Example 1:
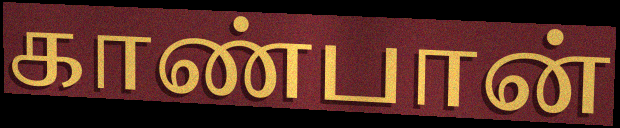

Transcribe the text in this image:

காண்பான்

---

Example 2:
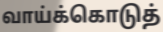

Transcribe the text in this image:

வாய்க்கொடுத்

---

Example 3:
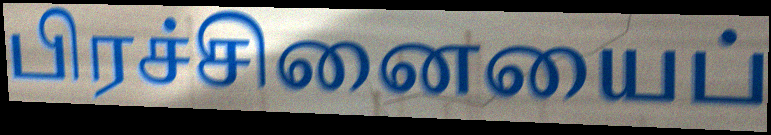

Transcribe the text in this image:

பிரச்சினையைப்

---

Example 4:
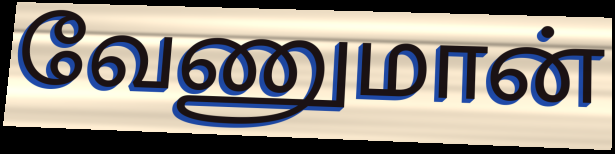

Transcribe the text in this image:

வேணுமான்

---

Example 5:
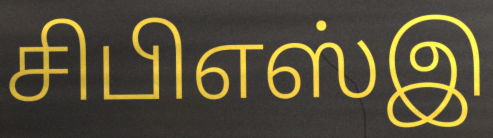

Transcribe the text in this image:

சிபிஎஸ்இ